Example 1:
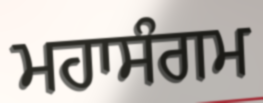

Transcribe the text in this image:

ਮਹਾਸੰਗਮ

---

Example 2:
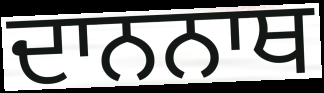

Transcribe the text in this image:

ਦਾਨਨਾਥ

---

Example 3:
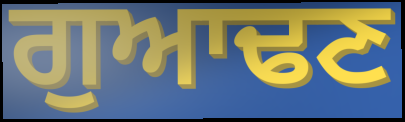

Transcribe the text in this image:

ਗੁਆਢਣ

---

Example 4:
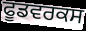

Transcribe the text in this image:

ਫੂਡਵਰਕਸ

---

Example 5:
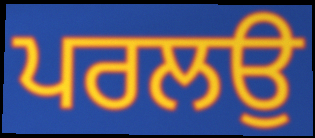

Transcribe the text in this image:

ਪਰਲਉ